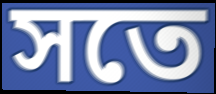
সতে